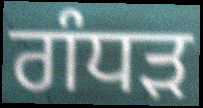
ਗੰਧੜ